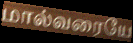
மால்வரையே